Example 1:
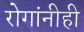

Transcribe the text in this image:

रोगांनीही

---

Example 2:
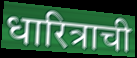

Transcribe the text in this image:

धारित्राची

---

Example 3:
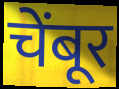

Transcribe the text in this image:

चेंबूर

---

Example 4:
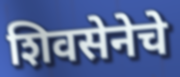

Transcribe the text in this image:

शिवसेनेचे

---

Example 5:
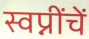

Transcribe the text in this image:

स्वप्नींचें